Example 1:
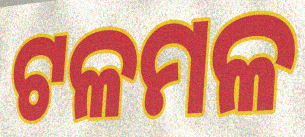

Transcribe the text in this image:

ଟଳମଳ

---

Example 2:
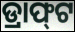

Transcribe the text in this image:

ଡ୍ରାଫ୍‌ଟ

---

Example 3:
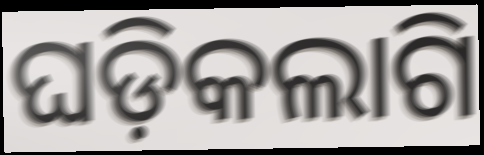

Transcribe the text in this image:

ଘଡ଼ିକଲାଗି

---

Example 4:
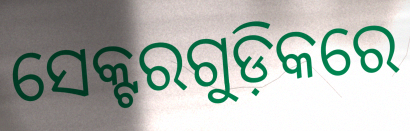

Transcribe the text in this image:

ସେକ୍ଟରଗୁଡ଼ିକରେ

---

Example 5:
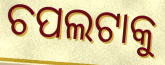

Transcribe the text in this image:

ଚପଲଟାକୁ